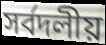
সৰ্বদলীয়